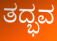
ತದ್ಭವ